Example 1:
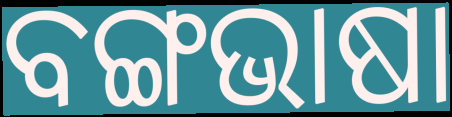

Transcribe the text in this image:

ବଙ୍ଗଭାଷା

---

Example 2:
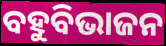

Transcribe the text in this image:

ବହୁବିଭାଜନ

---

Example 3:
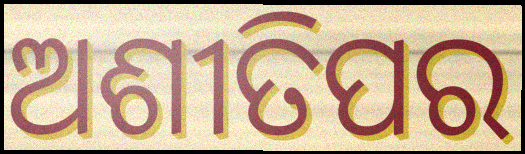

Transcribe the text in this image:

ଅଶୀତିପର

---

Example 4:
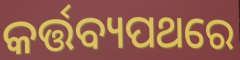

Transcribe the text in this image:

କର୍ତ୍ତବ୍ୟପଥରେ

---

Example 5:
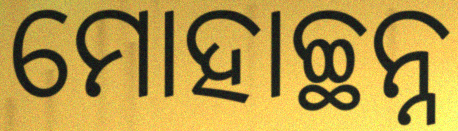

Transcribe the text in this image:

ମୋହାଚ୍ଛନ୍ନ